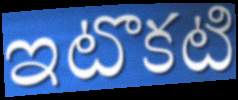
ఇటొకటి